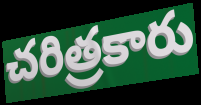
చరిత్రకారు